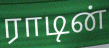
ராடின்